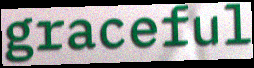
graceful